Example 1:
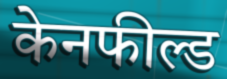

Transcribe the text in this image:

केनफील्ड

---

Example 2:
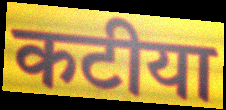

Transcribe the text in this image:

कटीया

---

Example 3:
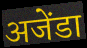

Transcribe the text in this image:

अजेंडा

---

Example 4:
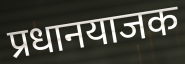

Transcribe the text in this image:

प्रधानयाजक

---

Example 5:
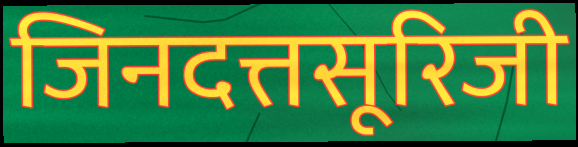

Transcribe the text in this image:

जिनदत्तसूरिजी